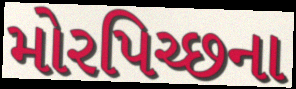
મોરપિચ્છના